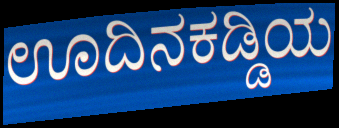
ಊದಿನಕಡ್ಡಿಯ